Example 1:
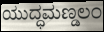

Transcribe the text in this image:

ಯುದ್ಧಮಣ್ಡಲಂ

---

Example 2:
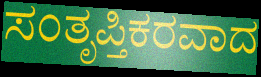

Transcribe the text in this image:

ಸಂತೃಪ್ತಿಕರವಾದ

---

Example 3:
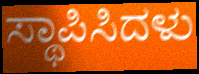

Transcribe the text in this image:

ಸ್ಥಾಪಿಸಿದಳು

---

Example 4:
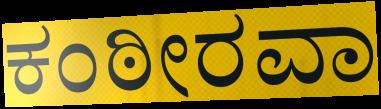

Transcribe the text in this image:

ಕಂಠೀರವಾ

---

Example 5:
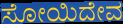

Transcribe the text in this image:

ಸೋಯಿದೇವ